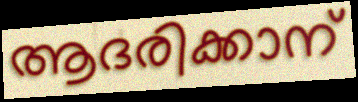
ആദരിക്കാന്